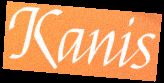
Kanis